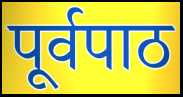
पूर्वपाठ